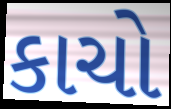
કાચો